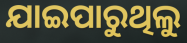
ଯାଇପାରୁଥିଲୁ